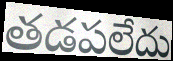
తడపలేదు